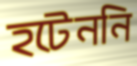
হটেননি